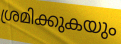
ശ്രമിക്കുകയും